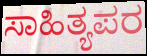
ಸಾಹಿತ್ಯಪರ